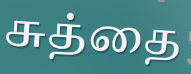
சுத்தை